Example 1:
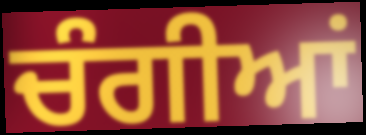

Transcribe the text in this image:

ਚੰਗੀਆਂ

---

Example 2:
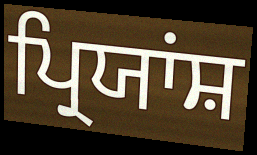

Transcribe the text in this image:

ਪ੍ਰਿਯਾਂਸ਼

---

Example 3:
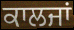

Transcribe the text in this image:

ਕਾਲਜਾਂ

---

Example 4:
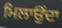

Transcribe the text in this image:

ਮਿਲਾਉਂਦਾ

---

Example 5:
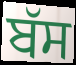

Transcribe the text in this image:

ਬੱਸ